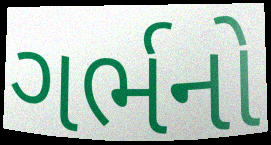
ગર્ભનો